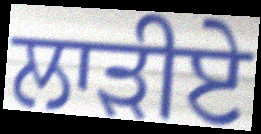
ਲਾੜੀਏ